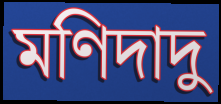
মণিদাদু